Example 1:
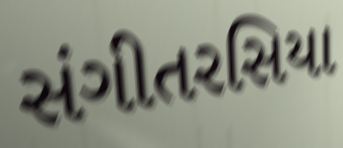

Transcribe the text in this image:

સંગીતરસિયા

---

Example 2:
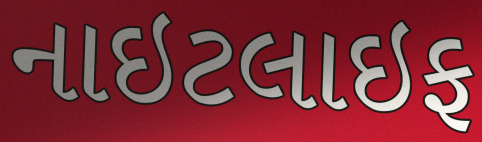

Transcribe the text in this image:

નાઇટલાઇફ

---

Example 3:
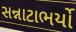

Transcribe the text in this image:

સન્નાટાભર્યો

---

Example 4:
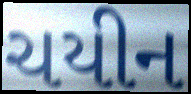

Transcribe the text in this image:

ચયીન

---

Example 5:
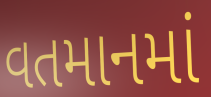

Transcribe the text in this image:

વતમાનમાં